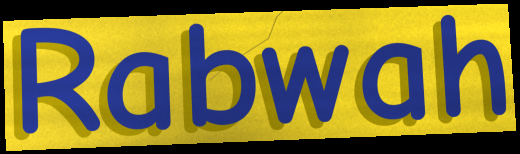
Rabwah